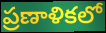
ప్రణాళికలో